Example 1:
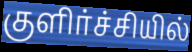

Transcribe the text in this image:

குளிர்ச்சியில்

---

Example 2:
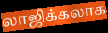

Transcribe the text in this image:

லாஜிக்கலாக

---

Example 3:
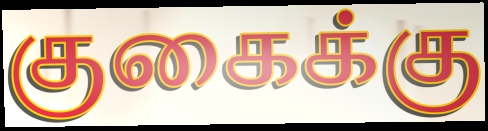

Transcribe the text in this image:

குகைக்கு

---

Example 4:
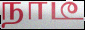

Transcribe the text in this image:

நாடீ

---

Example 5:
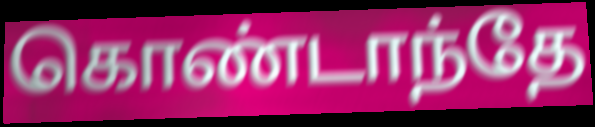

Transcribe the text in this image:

கொண்டாந்தே